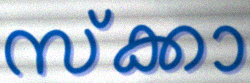
സ്ക്കാ